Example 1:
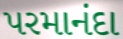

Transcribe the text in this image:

પરમાનંદા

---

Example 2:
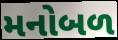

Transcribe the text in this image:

મનોબળ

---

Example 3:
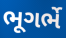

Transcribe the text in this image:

ભૂગર્ભે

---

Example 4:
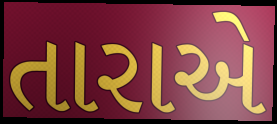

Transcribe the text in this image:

તારાએ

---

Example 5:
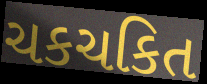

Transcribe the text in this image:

ચકચકિત